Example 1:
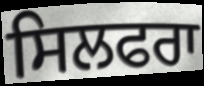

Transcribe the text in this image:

ਸਿਲਫਰਾ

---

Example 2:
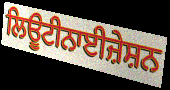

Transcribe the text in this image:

ਲਿਊਟੀਨਾਈਜ਼ੇਸ਼ਨ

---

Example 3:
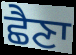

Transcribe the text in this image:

ਛੈਣਾ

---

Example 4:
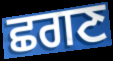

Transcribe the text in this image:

ਛਗਣ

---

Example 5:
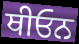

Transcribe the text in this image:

ਥੀਓਨ